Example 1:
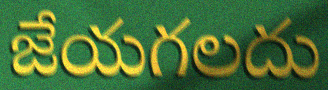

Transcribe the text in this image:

జేయగలదు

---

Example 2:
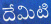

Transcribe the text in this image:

దేమిటి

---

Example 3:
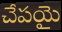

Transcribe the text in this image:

చేపయై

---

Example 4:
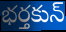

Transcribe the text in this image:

భర్తకున్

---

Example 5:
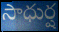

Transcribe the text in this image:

సాధుర్ష